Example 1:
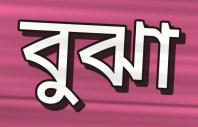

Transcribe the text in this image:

বুঝা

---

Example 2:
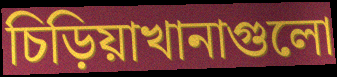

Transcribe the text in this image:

চিড়িয়াখানাগুলো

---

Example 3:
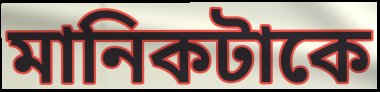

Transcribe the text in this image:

মানিকটাকে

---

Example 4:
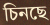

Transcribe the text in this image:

চিনছে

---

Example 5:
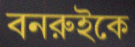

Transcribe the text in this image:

বনরুইকে